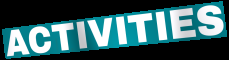
ACTIVITIES